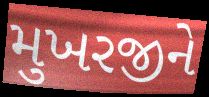
મુખરજીને